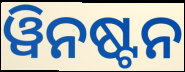
ୱିନଷ୍ଟନ